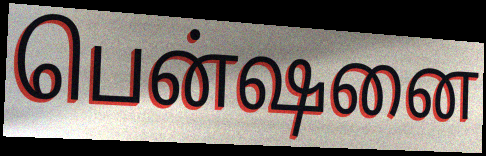
பென்ஷனை